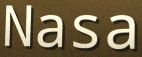
Nasa